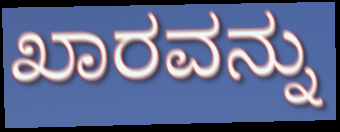
ಖಾರವನ್ನು